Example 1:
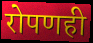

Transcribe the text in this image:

रोपणही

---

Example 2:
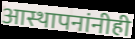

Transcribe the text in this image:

आस्थापनांनीही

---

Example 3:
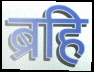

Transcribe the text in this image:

ब्रहि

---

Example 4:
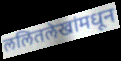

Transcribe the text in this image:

ललितलेखांमधून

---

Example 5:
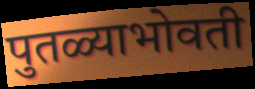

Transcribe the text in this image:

पुतळ्याभोवती